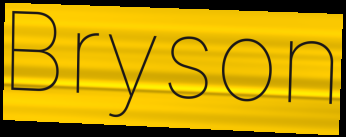
Bryson